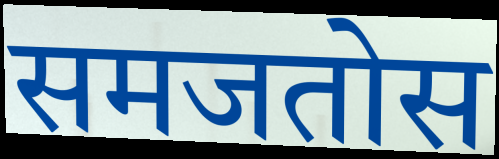
समजतोस